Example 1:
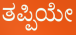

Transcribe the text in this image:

ತಪ್ಪಿಯೇ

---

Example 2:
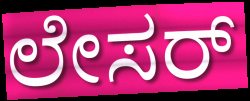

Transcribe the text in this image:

ಲೇಸರ್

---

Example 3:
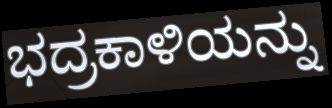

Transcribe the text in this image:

ಭದ್ರಕಾಳಿಯನ್ನು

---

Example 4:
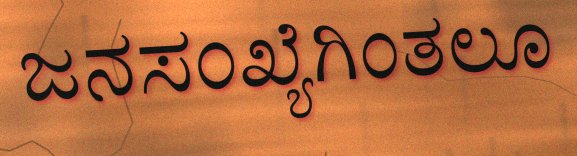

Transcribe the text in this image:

ಜನಸಂಖ್ಯೆಗಿಂತಲೂ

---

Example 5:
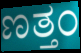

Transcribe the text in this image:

ಣತ್ತಂ